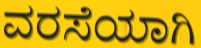
ವರಸೆಯಾಗಿ